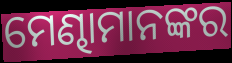
ମେଣ୍ଢାମାନଙ୍କର